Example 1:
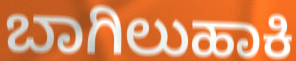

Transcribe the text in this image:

ಬಾಗಿಲುಹಾಕಿ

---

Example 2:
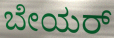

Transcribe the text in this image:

ಬೇಯರ್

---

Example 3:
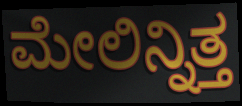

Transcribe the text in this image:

ಮೇಲಿನ್ನಿತ್ತ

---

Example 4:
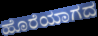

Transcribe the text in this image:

ಹೊರೆಯಾಗದ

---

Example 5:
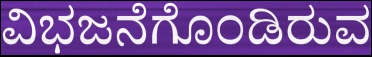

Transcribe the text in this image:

ವಿಭಜನೆಗೊಂಡಿರುವ